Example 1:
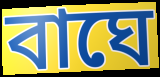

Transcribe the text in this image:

বাঘে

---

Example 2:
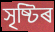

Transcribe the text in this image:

সৃষ্টিৰ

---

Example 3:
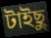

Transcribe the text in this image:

টাইছু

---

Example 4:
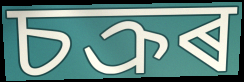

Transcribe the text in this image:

চক্ৰৰ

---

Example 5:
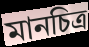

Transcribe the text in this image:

মানচিত্ৰ